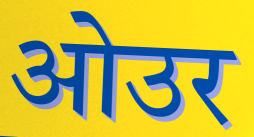
ओउर